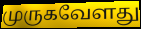
முருகவேளது